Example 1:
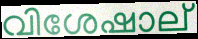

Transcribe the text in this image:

വിശേഷാല്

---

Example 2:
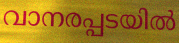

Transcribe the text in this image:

വാനരപ്പടയിൽ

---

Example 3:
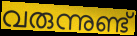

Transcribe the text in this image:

വരുന്നുണ്ട്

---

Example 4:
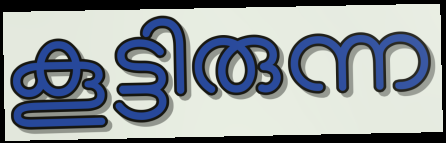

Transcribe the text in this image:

കൂട്ടിരുന്ന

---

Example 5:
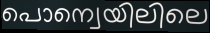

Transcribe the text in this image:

പൊന്വെയിലിലെ